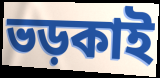
ভড়কাই